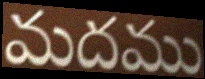
మదము